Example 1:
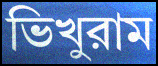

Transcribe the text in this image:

ভিখুরাম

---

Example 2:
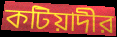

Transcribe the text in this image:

কটিয়াদীর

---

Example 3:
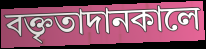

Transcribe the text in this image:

বক্তৃতাদানকালে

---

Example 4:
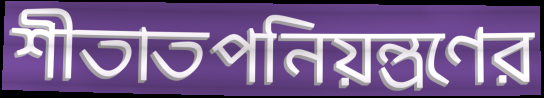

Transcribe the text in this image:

শীতাতপনিয়ন্ত্রণের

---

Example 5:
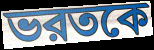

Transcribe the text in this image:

ভরতকে